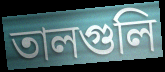
তালগুলি